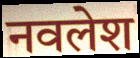
नवलेश